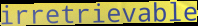
irretrievable